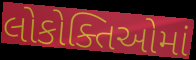
લોકોક્તિઓમાં